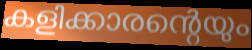
കളിക്കാരന്റെയും